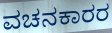
ವಚನಕಾರರ